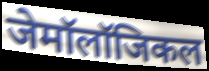
जेमॉलॉजिकल